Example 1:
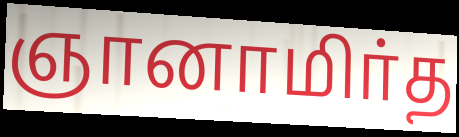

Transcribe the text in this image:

ஞானாமிர்த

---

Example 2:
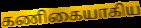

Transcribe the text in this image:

கணிகையாகிய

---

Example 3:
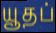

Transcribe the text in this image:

யூதப்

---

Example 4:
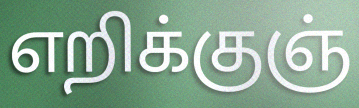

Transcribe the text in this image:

எறிக்குஞ்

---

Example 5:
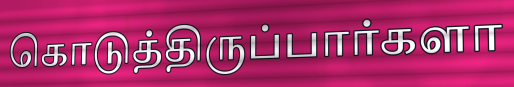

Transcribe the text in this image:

கொடுத்திருப்பார்களா